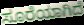
ಸೂರೆಯಾಗಿದೆ